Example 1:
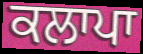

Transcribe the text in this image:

ਕਲਾਪਾ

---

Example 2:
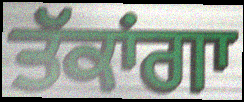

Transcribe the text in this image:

ਤੱਕਾਂਗਾ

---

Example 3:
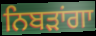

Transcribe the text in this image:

ਨਿਬੜਾਂਗਾ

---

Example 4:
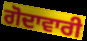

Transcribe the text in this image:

ਗੋਦਾਵਾਰੀ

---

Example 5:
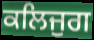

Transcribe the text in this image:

ਕਲਿਜੁਗ